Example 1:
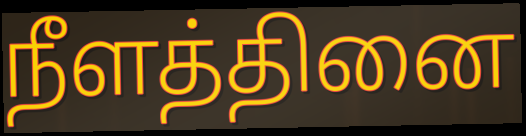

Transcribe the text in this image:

நீளத்தினை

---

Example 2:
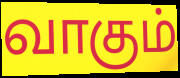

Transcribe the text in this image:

வாகும்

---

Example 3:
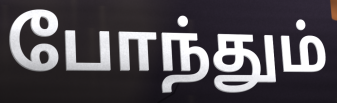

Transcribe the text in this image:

போந்தும்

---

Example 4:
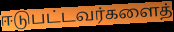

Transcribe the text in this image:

ஈடுபட்டவர்களைத்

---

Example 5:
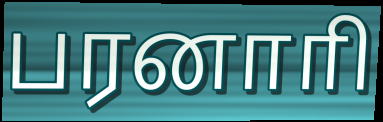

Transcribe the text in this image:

பரனாரி